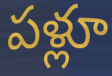
పళ్లూ